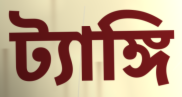
ট্যাঙ্গি